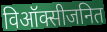
विऑक्सीजनित